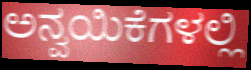
ಅನ್ವಯಿಕೆಗಳಲ್ಲಿ